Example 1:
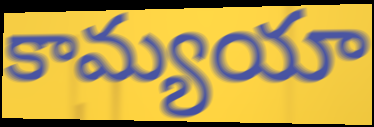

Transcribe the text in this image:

కామ్యయా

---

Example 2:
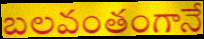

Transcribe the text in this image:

బలవంతంగానే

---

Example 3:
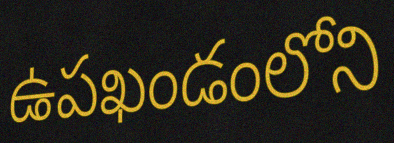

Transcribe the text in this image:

ఉపఖండంలోని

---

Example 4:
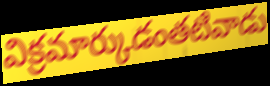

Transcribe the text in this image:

విక్రమార్కుడంతటివాడు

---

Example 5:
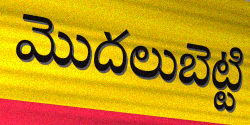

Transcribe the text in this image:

మొదలుబెట్టి